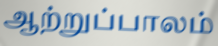
ஆற்றுப்பாலம்